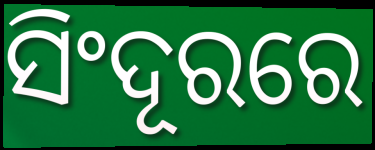
ସିଂଦୂରରେ